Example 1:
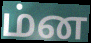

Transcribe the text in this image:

ம்ன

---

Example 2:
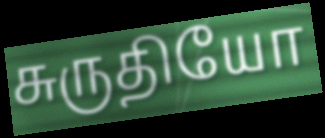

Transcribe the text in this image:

சுருதியோ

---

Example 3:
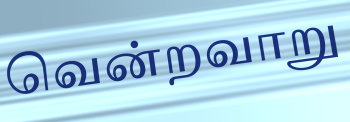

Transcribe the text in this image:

வென்றவாறு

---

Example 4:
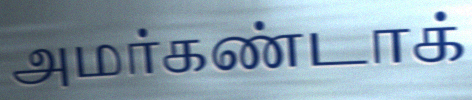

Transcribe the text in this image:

அமர்கண்டாக்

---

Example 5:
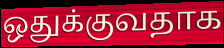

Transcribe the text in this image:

ஒதுக்குவதாக